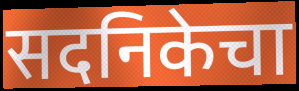
सदनिकेचा